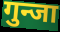
गुन्जा